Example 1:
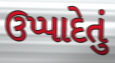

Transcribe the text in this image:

ઉપ્પાદેતું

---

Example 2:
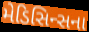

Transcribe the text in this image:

મેડિસિન્સના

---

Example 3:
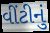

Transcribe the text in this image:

વીંટીનું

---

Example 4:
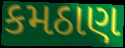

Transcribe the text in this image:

કમઠાણ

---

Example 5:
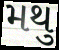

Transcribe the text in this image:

મથુ